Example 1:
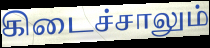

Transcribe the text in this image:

கிடைச்சாலும்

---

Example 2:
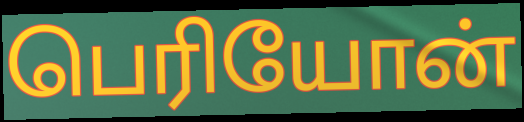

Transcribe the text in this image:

பெரியோன்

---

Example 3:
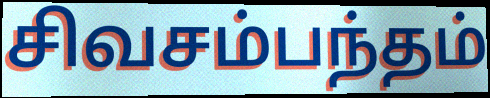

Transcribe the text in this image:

சிவசம்பந்தம்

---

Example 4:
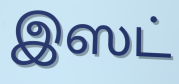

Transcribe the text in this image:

இஸட்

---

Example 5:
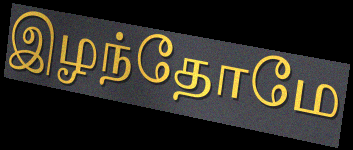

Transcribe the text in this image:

இழந்தோமே